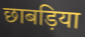
छाबड़िया